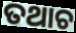
ତଥାଚ